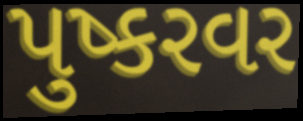
પુષ્કરવર